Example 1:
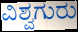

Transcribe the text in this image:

ವಿಶ್ವಗುರು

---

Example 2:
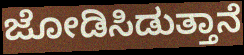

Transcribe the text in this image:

ಜೋಡಿಸಿಡುತ್ತಾನೆ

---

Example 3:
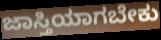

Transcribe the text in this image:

ಜಾಸ್ತಿಯಾಗಬೇಕು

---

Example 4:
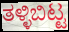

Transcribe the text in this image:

ತಳ್ಳಿಬಿಟ್ಟ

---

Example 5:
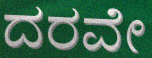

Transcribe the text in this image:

ದರವೇ